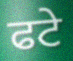
ਫਟੇ